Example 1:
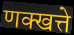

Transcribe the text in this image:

णक्खत्ते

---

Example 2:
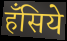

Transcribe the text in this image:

हँसिये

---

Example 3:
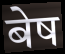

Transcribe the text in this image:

बेष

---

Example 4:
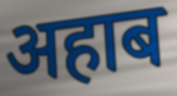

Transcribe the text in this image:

अहाब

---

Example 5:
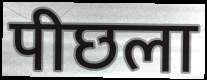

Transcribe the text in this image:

पीछला